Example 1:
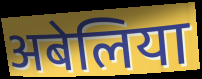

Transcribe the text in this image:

अबेलिया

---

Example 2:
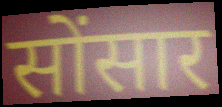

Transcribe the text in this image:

सोंसार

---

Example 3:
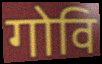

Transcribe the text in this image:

गोवि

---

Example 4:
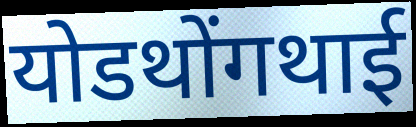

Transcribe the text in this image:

योडथोंगथाई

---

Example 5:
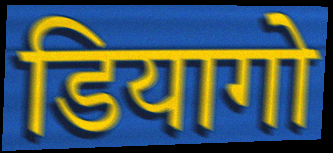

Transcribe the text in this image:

डियागो